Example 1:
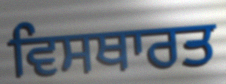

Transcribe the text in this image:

ਵਿਸਥਾਰਤ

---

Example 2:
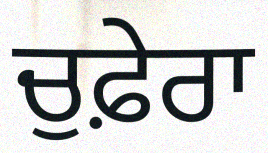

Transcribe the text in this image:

ਚੁਫ਼ੇਰਾ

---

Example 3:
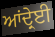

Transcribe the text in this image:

ਆਂਦ੍ਰੇਈ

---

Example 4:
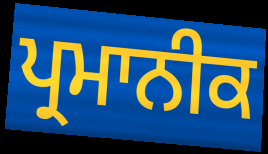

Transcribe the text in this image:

ਪ੍ਰਮਾਨੀਕ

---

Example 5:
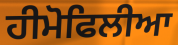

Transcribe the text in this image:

ਹੀਮੋਫਿਲੀਆ